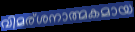
വിമര്ശനാത്മകമായ